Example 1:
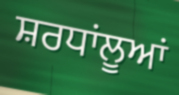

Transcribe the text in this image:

ਸ਼ਰਧਾਂਲੂਆਂ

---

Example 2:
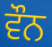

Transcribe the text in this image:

ਵੌਨ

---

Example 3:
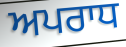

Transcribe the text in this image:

ਅਪਰਾਧ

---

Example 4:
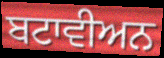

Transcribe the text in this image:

ਬਟਾਵੀਅਨ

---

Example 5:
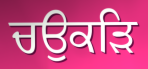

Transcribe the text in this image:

ਚਉਕੜਿ